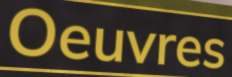
Oeuvres